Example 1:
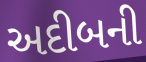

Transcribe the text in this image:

અદીબની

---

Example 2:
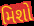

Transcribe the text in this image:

મિશો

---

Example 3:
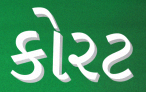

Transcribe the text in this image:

કોરટ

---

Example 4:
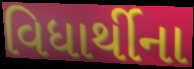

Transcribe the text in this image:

વિધાર્થીના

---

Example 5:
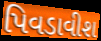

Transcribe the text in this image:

પિવડાવીશ